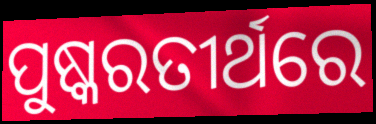
ପୁଷ୍କରତୀର୍ଥରେ